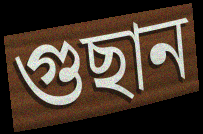
গুছান